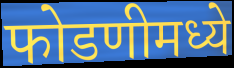
फोडणीमध्ये